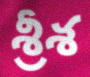
శ్రీశ